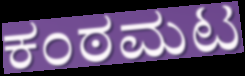
ಕಂಠಮಟ